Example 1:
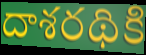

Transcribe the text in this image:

దాశరథికి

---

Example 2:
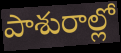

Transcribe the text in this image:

పాశురాల్లో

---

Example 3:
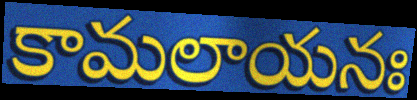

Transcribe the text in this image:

కామలాయనః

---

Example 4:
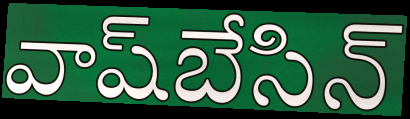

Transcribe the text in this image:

వాష్‌బేసిన్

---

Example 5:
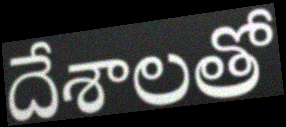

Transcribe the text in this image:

దేశాలతో